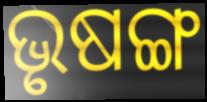
ଭୃଷଙ୍ଗ